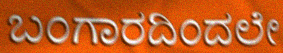
ಬಂಗಾರದಿಂದಲೇ